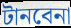
টানবেনা